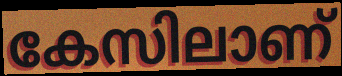
കേസിലാണ്